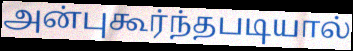
அன்புகூர்ந்தபடியால்